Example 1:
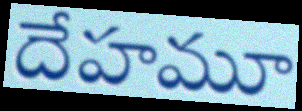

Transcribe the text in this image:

దేహమూ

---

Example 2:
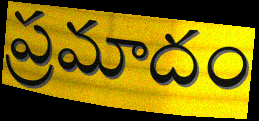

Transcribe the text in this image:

ప్రమాదం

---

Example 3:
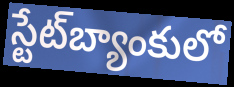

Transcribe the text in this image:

స్టేట్‌బ్యాంకులో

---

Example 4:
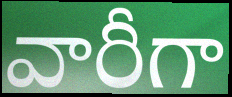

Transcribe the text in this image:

వారీగా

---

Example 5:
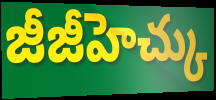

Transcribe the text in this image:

జీజీహెచ్కు